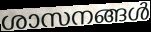
ശാസനങ്ങൾ